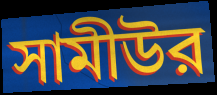
সামীউর